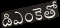
డిఎంకెతో